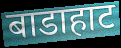
बाडाहाट